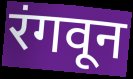
रंगवून